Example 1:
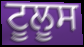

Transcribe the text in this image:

ਟੂਲੂਸ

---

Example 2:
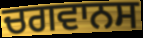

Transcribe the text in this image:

ਚਗਵਾਨਸ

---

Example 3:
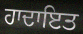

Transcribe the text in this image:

ਹਾਦਾਇਤ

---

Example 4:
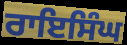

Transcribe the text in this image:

ਰਾਇਸਿੰਘ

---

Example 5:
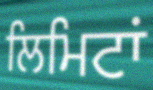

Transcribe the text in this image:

ਲਿਮਿਟਾਂ